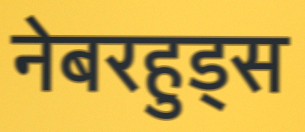
नेबरहुड्स